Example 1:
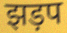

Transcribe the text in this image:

झड़प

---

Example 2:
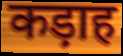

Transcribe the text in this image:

कड़ाह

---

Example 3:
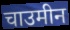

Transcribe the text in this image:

चाउमीन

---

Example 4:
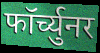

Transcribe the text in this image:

फॉर्च्युनर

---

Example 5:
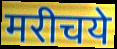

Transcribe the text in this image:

मरीचये